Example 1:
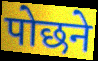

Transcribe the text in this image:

पोछने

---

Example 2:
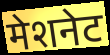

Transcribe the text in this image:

मेशनेट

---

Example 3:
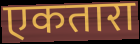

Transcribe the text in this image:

एकतारा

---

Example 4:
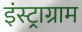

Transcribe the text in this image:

इंस्ट्राग्राम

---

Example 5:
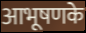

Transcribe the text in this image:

आभूषणके